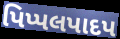
પિપ્પલપાદપ